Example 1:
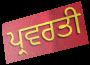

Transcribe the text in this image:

ਪ੍ਰਵਰਤੀ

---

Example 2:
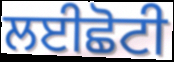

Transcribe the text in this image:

ਲਈਛੋਟੀ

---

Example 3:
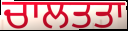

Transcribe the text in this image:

ਚਾਲਤਤਾ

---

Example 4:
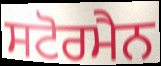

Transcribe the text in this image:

ਸਟੋਰਮੈਨ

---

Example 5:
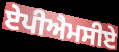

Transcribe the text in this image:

ਏਪੀਐਮਸੀਏ